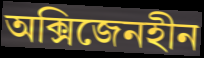
অক্সিজেনহীন